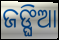
ଜଙ୍ଘିଆ